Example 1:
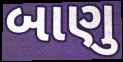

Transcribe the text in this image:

બાણુ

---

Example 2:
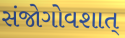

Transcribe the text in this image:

સંજોગોવશાત્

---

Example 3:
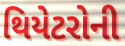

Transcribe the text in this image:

થિયેટરોની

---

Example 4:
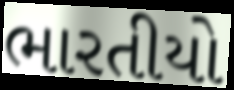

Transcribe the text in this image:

ભારતીયો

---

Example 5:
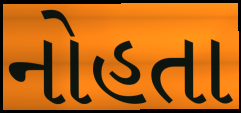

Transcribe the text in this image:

નોહતા